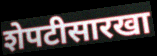
शेपटीसारखा